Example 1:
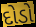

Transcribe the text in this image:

દોડો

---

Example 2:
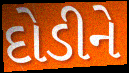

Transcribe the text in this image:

દોડીને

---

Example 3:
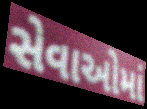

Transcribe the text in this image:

સેવાઓમાં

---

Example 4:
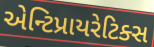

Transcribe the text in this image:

એન્ટિપ્રાયરેટિક્સ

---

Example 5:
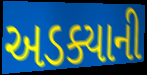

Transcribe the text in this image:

અડક્યાની